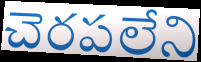
చెరపలేని